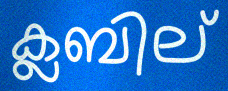
ക്ലബില്